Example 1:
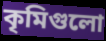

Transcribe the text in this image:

কৃমিগুলো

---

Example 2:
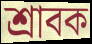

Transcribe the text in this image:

শ্রাবক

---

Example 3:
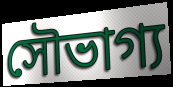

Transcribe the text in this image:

সৌভাগ্য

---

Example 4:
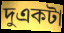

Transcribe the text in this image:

দুএকটা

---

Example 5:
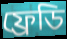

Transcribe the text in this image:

ফ্রেডি